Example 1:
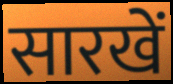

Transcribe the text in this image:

सारखें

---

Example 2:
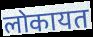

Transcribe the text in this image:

लोकायत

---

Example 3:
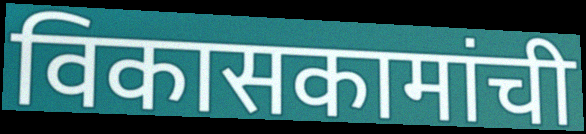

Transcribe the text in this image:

विकासकामांची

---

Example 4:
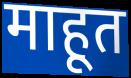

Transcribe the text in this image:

माहूत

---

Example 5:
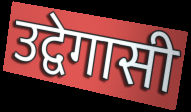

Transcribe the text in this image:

उद्वेगासी